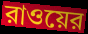
রাওয়ের